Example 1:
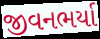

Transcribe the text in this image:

જીવનભર્યા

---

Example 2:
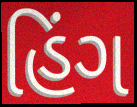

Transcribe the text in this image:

હિંગ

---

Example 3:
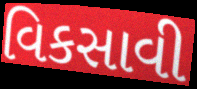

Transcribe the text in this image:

વિકસાવી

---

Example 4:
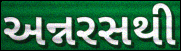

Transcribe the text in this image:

અન્નરસથી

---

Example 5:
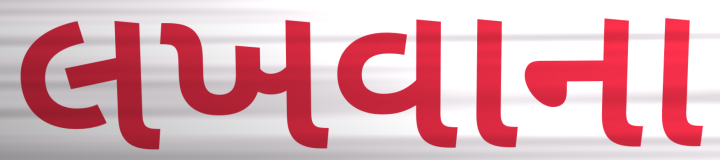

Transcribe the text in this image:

લખવાના